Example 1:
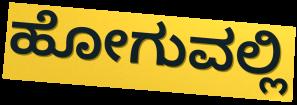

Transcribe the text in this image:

ಹೋಗುವಲ್ಲಿ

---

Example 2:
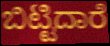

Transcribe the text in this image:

ಬಿಟ್ಟಿದಾರೆ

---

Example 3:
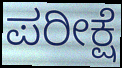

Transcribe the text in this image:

ಪರೀಕ್ಷೆ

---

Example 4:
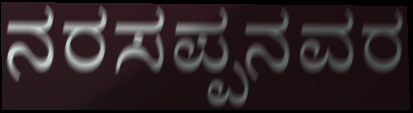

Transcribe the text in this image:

ನರಸಪ್ಪನವರ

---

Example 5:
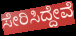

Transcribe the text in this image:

ಸೇರಿಸಿದ್ದೇವೆ